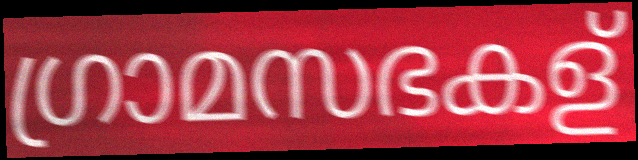
ഗ്രാമസഭകള്